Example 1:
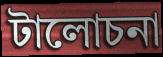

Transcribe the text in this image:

টালোচনা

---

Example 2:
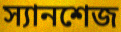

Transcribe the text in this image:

স্যানশেজ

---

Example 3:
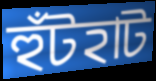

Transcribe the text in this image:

হুঁটহাট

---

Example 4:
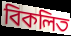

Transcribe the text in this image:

বিকলিত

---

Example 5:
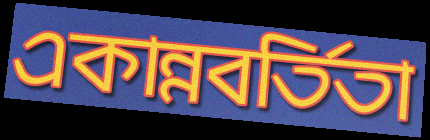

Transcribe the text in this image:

একান্নবর্তিতা